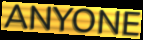
ANYONE